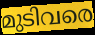
മുടിവരെ